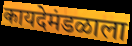
कायदेमंडळाला